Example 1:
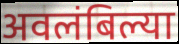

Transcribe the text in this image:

अवलंबिल्या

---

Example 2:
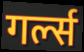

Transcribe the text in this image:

गर्ल्स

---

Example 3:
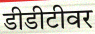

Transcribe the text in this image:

डीडीटीवर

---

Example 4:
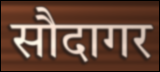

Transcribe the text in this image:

सौदागर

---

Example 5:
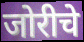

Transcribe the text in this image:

जोरीचे